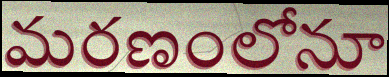
మరణంలోనూ